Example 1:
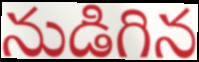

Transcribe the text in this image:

నుడిగిన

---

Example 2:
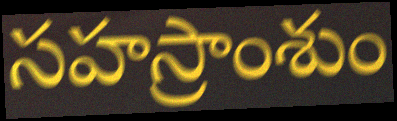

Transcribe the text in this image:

సహస్రాంశుం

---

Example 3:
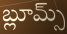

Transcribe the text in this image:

బ్లూమ్స్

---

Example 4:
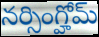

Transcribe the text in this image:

నర్సింగ్హోమ్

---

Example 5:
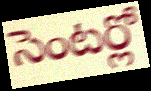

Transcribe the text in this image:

సెంటర్లో